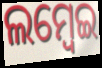
ଲମ୍ଵେଇ